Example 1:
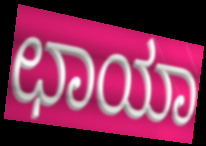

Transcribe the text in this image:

ಛಾಯಾ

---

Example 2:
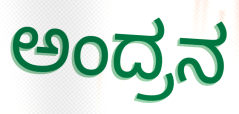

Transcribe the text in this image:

ಅಂದ್ರನ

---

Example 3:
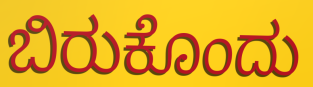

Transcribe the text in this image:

ಬಿರುಕೊಂದು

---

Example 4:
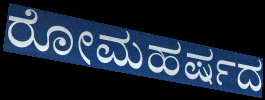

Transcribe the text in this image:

ರೋಮಹರ್ಷದ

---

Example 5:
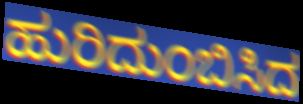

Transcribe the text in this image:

ಹುರಿದುಂಬಿಸಿದ